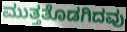
ಮುತ್ತತೊಡಗಿದವು